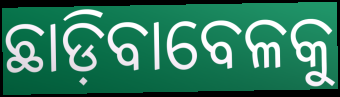
ଛାଡ଼ିବାବେଳକୁ